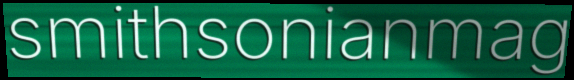
smithsonianmag